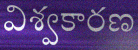
విశ్వకారణ